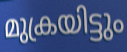
മുക്രയിട്ടും